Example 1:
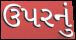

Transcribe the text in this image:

ઉપરનું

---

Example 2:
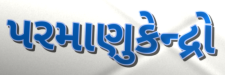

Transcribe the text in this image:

પરમાણુકેન્દ્રો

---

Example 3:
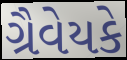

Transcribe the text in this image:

ગ્રૈવેયકે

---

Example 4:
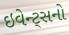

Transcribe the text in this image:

ઇવેન્ટ્સનો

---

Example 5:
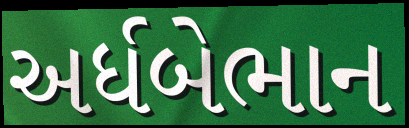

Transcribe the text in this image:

અર્ધબેભાન